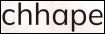
chhape